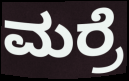
ಮರ್ರೆ